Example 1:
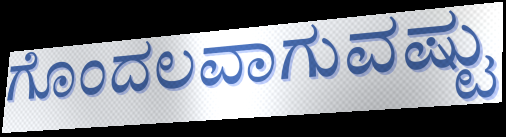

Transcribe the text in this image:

ಗೊಂದಲವಾಗುವಷ್ಟು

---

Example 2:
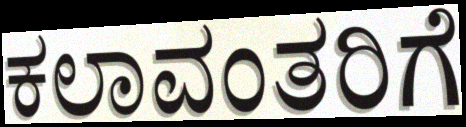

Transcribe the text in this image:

ಕಲಾವಂತರಿಗೆ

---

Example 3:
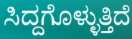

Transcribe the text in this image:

ಸಿದ್ದಗೊಳ್ಳುತ್ತಿದೆ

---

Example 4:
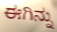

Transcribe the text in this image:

ಈಗಿನ್ನು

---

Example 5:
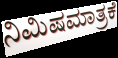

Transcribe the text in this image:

ನಿಮಿಷಮಾತ್ರಕೆ